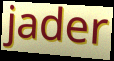
jader